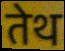
तेथ